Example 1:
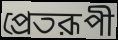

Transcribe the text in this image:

প্রেতরূপী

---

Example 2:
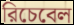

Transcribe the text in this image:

রিচেবেল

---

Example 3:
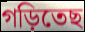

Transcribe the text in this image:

গড়িতেছ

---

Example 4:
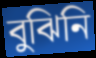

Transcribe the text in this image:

বুঝিনি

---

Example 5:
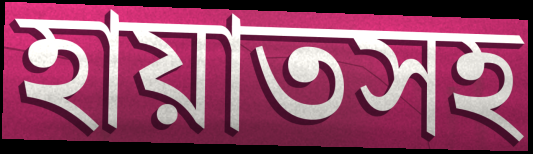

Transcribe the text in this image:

হায়াতসহ